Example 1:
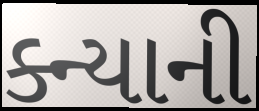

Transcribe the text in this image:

ક્ન્યાની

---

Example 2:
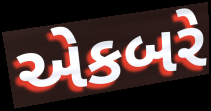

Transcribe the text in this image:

એકબરે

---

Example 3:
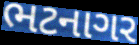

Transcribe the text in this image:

ભટનાગર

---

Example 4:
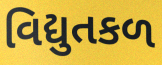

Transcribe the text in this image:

વિદ્યુતકળ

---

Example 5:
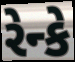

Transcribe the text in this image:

રેન્કે